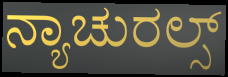
ನ್ಯಾಚುರಲ್ಸ್